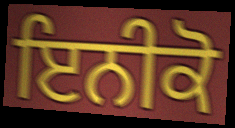
ਇਨੀਕੋ